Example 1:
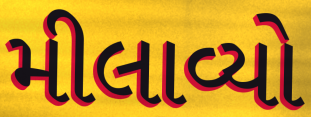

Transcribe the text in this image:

મીલાવ્યો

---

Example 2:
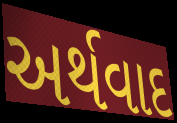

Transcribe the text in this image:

અર્થવાદ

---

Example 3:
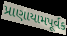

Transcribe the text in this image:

પ્રાણાયામપૂર્વક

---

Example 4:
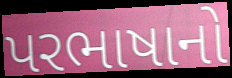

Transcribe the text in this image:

પરભાષાનો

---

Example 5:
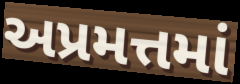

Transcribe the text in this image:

અપ્રમત્તમાં